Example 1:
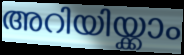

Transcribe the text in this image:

അറിയിയ്ക്കാം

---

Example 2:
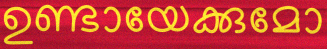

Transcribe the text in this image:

ഉണ്ടായേക്കുമോ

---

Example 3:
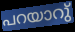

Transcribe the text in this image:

പറയാറു്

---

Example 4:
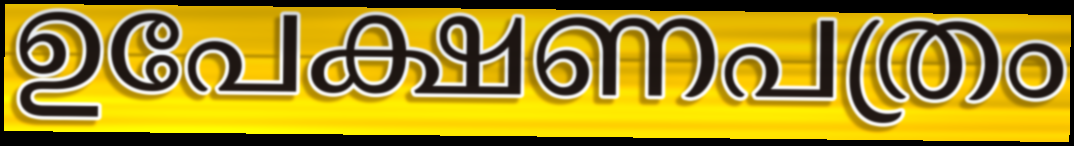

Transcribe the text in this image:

ഉപേക്ഷണപത്രം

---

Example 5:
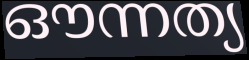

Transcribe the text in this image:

ഔന്നത്യ